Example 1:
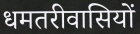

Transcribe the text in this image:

धमतरीवासियों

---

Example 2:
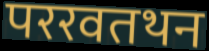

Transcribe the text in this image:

पररवतथन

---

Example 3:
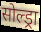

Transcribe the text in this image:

सोल्ड्रा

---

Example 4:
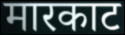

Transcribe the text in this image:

मारकाट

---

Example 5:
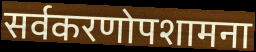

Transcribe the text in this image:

सर्वकरणोपशामना